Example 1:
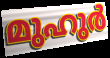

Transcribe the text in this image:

മുഹുർ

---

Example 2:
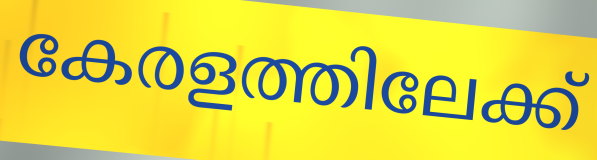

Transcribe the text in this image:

കേരളത്തിലേക്ക്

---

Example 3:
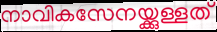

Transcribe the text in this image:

നാവികസേനയ്ക്കുള്ളത്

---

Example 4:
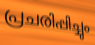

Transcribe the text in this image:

പ്രചരിപ്പിച്ചും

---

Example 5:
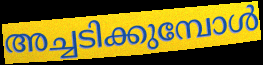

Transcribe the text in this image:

അച്ചടിക്കുമ്പോൾ